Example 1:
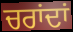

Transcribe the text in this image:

ਚਰਾਂਦਾਂ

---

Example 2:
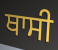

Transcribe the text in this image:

ਥਾਸੀ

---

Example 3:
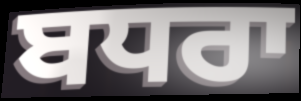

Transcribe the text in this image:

ਬਧਰਾ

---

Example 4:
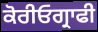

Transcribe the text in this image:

ਕੋਰੀਓਗ੍ਰਾਫੀ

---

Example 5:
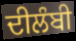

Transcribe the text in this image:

ਦੀਲੰਬੀ